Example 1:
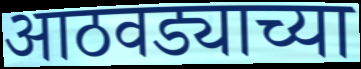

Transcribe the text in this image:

आठवड्याच्या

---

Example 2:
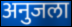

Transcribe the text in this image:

अनुजला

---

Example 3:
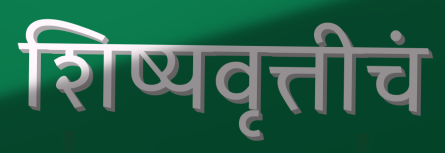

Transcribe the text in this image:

शिष्यवृत्तीचं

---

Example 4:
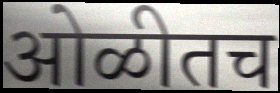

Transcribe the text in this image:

ओळीतच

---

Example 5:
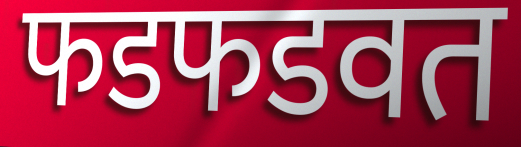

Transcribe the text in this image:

फडफडवत